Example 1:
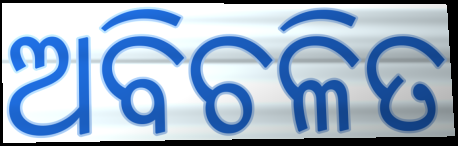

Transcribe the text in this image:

ଅବିଚଳିତ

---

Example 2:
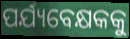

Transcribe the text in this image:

ପର୍ଯ୍ୟବେକ୍ଷକକୁ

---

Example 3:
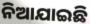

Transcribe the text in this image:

ନିଆଯାଇଛି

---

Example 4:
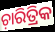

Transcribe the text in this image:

ଚ଼ାରିତ୍ରିକ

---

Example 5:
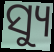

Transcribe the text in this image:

ସ୍ୟୁ